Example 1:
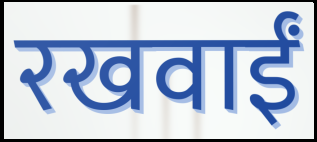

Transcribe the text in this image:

रखवाईं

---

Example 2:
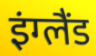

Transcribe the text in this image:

इंग्लैंड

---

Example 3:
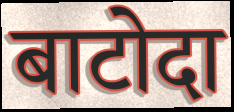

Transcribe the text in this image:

बाटोदा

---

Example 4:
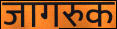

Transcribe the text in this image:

जागरुक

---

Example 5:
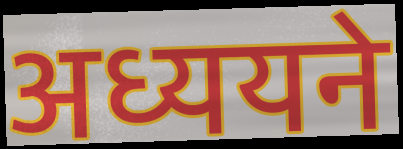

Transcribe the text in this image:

अध्ययने